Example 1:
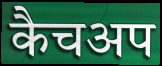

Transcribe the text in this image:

कैचअप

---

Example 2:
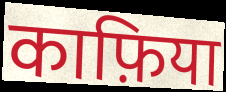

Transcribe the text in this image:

काफ़िया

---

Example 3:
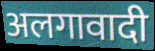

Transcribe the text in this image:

अलगावादी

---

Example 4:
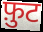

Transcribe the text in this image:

फ़ुट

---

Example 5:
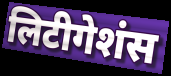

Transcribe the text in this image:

लिटीगेशंस